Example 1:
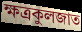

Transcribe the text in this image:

ক্ষত্রকুলজাত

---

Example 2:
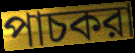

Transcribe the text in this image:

পাচকরা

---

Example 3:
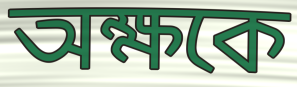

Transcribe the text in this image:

অক্ষকে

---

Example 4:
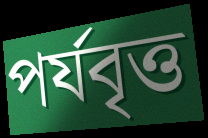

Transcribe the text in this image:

পর্যবৃত্ত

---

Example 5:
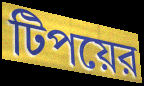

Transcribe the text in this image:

টিপয়ের